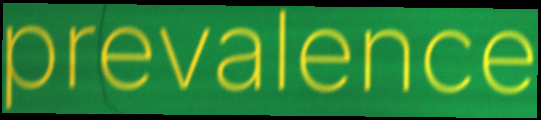
prevalence